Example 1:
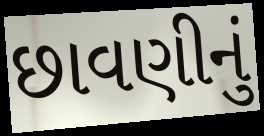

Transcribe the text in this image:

છાવણીનું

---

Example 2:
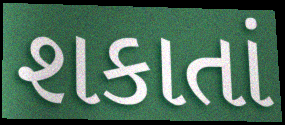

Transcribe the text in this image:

શકાતાં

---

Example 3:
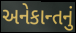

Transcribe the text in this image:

અનેકાન્તનું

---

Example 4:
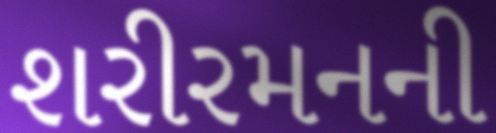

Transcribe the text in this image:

શરીરમનની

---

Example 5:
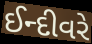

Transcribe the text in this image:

ઈન્દીવરે